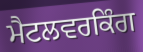
ਮੈਟਲਵਰਕਿੰਗ